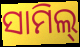
ସାମିଲ୍